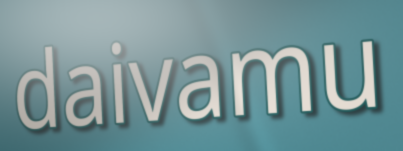
daivamu